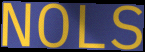
NOLS